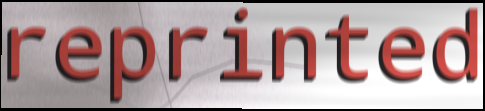
reprinted